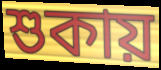
শুকায়